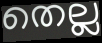
തെല്ല